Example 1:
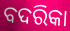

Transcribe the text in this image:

ବଦରିକା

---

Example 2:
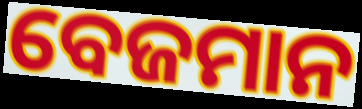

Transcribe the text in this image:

ବେଜମାନ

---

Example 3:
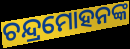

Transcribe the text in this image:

ଚନ୍ଦ୍ରମୋହନଙ୍କ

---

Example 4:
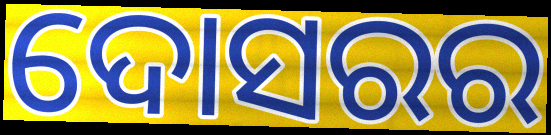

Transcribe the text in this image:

ଦୋସରର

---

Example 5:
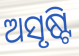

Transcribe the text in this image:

ଅସୃଷ୍ଟି